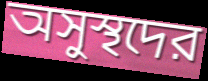
অসুস্থদের